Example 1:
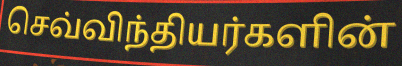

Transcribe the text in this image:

செவ்விந்தியர்களின்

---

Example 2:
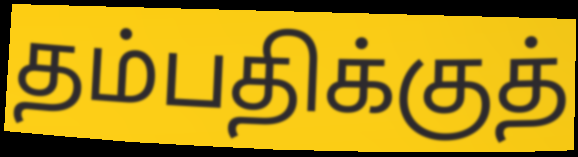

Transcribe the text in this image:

தம்பதிக்குத்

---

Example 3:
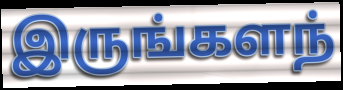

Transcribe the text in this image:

இருங்களந்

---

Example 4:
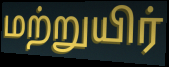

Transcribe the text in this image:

மற்றுயிர்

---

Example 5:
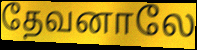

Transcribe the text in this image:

தேவனாலே